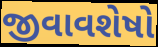
જીવાવશેષો